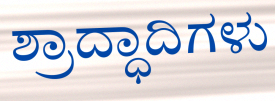
ಶ್ರಾದ್ಧಾದಿಗಳು